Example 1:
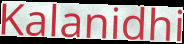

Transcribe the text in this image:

Kalanidhi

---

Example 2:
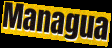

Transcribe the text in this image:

Managua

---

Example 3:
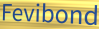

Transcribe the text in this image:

Fevibond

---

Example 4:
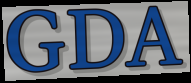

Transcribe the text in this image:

GDA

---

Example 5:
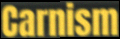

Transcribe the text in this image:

Carnism